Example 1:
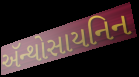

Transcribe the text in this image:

ઍન્થોસાયનિન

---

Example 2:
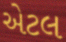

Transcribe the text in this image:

એટલ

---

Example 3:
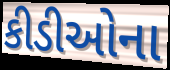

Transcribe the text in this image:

કીડીઓના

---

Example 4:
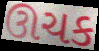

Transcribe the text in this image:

ઊચક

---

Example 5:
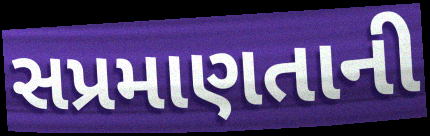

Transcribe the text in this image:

સપ્રમાણતાની